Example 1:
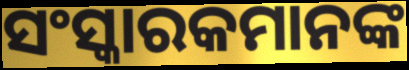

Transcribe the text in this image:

ସଂସ୍କାରକମାନଙ୍କ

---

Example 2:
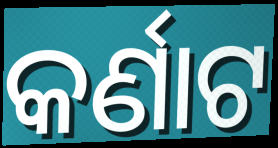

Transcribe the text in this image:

କର୍ଣାଟ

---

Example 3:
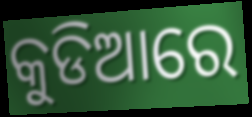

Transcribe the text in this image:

କୁଡିଆରେ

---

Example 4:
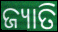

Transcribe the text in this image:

ଜ୍ୟାତି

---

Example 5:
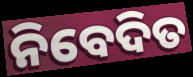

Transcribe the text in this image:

ନିବେଦିତ